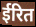
ईरित